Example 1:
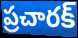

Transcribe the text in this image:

ప్రచారక్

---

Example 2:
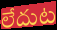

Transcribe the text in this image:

లేదుట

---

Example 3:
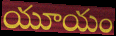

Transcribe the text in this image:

యూయం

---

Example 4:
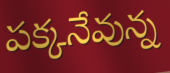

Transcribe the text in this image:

పక్కనేవున్న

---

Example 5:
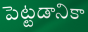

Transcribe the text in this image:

పెట్టడానికా